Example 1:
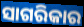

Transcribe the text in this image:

ସାଗରିକାର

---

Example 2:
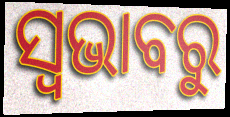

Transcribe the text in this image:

ସ୍ୱଭାବରୁ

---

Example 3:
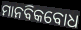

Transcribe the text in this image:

ମାନବିକବୋଧ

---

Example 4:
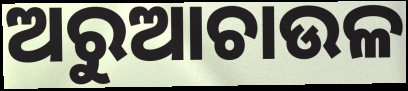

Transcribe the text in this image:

ଅରୁଆଚାଉଳ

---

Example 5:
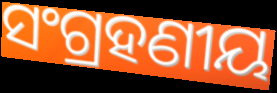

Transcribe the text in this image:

ସଂଗ୍ରହଣୀୟ